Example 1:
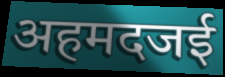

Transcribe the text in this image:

अहमदजई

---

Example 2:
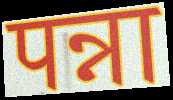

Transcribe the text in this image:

पन्ना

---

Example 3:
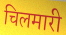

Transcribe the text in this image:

चिलमारी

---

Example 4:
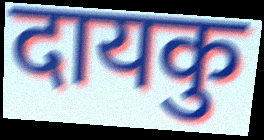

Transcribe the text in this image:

दायकु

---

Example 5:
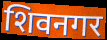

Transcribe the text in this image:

शिवनगर